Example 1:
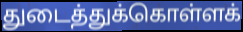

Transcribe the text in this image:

துடைத்துக்கொள்ளக்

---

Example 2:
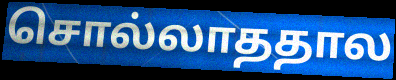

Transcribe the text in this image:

சொல்லாததால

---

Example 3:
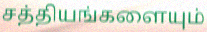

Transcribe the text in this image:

சத்தியங்களையும்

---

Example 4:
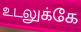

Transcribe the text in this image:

உடலுக்கே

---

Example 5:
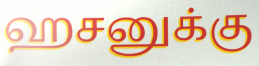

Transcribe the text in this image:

ஹசனுக்கு